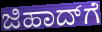
ಜಿಹಾದ್‌ಗೆ